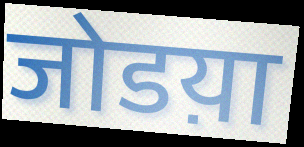
जोडय़ा